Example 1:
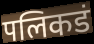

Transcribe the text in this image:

पलिकडं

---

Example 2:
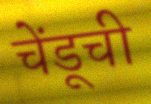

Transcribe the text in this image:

चेंडूची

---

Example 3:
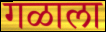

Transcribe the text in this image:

गळाला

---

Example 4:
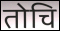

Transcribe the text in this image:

तोचि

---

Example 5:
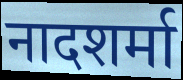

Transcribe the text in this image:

नादशर्मा